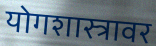
योगशास्त्रावर